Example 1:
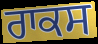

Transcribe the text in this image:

ਰਾਕਸ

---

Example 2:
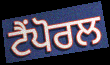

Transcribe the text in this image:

ਟੈਂਪੋਰਲ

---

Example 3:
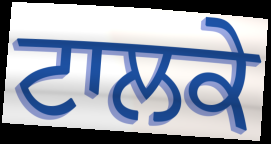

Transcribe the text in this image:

ਟਾਲਕੇ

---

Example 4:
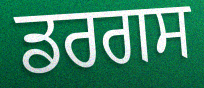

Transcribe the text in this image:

ਡਰਗਸ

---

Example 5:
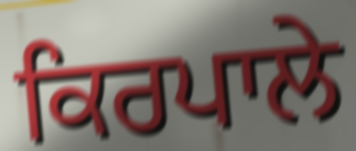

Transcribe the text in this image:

ਕਿਰਪਾਲੇ